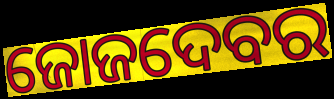
ଜୋଜଦେବର